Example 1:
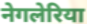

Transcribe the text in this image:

नेगलेरिया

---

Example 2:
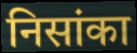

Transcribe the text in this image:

निसांका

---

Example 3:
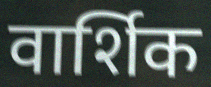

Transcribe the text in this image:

वार्शिक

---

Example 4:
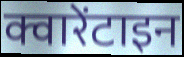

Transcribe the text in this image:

क्वारेंटाइन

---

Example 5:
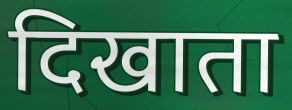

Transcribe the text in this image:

दिखाता